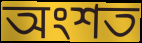
অংশত